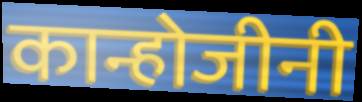
कान्होजीनी